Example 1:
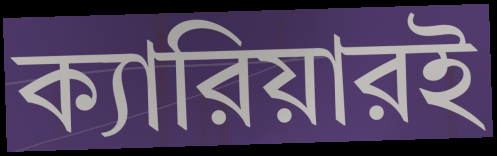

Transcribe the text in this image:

ক্যারিয়ারই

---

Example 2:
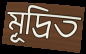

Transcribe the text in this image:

মূদ্রিত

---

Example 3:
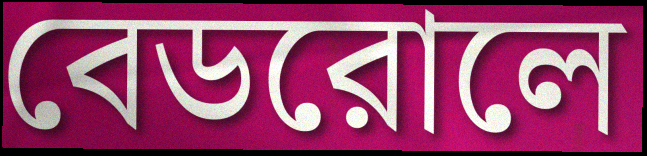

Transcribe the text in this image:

বেডরোলে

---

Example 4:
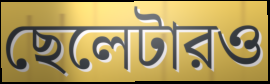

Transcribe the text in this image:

ছেলেটারও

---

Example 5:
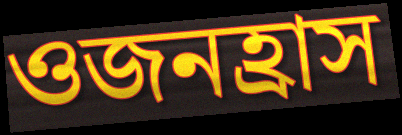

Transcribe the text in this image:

ওজনহ্রাস